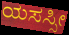
ಯಸಸ್ಸೀ